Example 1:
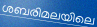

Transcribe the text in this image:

ശബരിമലയിലെ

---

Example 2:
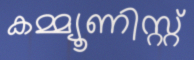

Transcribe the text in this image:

കമ്മ്യൂണിസ്റ്റ്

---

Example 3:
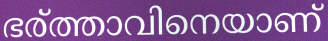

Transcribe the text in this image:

ഭര്ത്താവിനെയാണ്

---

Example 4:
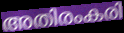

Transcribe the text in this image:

അതിരംകരി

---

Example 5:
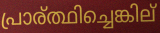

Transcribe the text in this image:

പ്രാര്ത്ഥിച്ചെങ്കില്